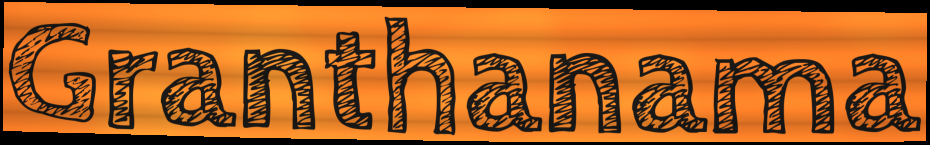
Granthanama